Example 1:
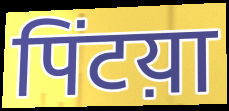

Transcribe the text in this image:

पिंटय़ा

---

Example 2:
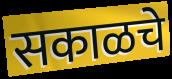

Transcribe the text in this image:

सकाळचे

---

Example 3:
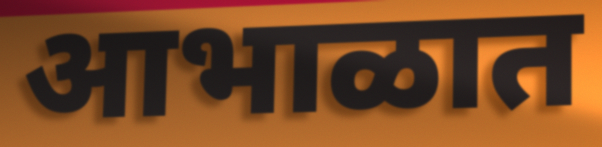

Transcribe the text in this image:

आभाळात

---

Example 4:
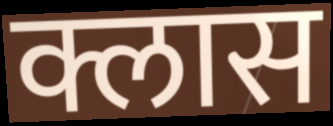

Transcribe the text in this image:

क्लास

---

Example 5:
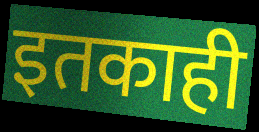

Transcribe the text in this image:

इतकाही